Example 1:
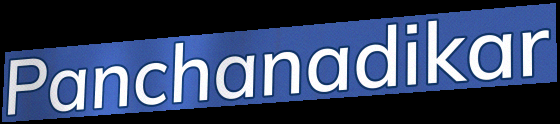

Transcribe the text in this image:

Panchanadikar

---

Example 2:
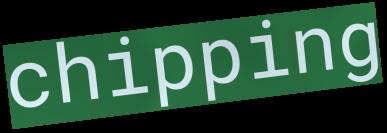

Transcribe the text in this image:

chipping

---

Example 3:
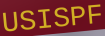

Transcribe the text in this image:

USISPF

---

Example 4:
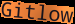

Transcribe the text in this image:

Gitlow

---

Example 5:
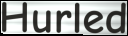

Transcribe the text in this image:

Hurled